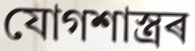
যোগশাস্ত্ৰৰ